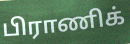
பிராணிக்